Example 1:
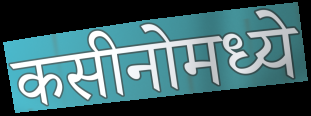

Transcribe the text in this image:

कसीनोमध्ये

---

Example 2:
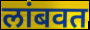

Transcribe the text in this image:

लांबवत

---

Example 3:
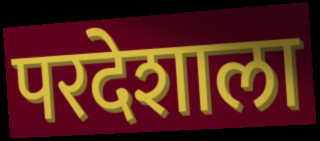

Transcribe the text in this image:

परदेशाला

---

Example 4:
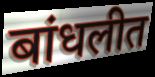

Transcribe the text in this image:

बांधलीत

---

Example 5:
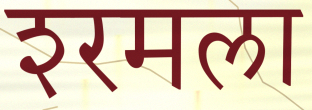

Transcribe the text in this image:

श्रमला